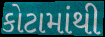
કોટામાંથી